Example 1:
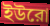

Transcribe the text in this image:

ইউরো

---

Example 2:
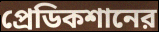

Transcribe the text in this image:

প্রেডিকশানের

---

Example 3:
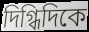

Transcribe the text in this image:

দিগ্ধিদিকে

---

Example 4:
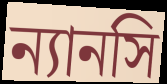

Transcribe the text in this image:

ন্যানসি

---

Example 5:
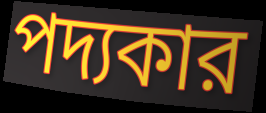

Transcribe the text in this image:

পদ্যকার